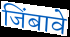
जिंबावे